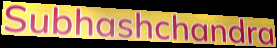
Subhashchandra